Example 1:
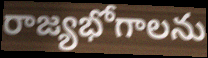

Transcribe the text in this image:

రాజ్యభోగాలను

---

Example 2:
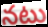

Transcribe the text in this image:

నటు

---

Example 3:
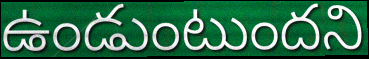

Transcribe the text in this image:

ఉండుంటుందని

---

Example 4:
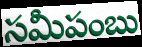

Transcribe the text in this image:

సమీపంబు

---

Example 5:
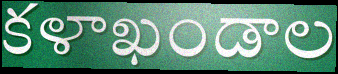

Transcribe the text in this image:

కళాఖండాల